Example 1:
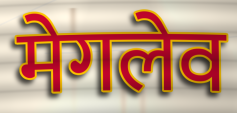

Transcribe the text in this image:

मेगलेव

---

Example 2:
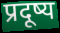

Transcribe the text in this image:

प्रदूष्य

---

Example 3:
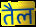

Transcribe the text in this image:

तैल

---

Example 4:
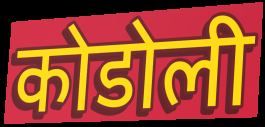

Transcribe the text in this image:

कोडोली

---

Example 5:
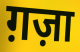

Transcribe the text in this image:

ग़ज़ा